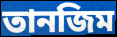
তানজিম